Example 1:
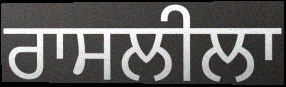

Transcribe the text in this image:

ਰਾਸਲੀਲਾ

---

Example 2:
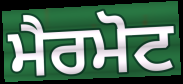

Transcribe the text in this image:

ਮੈਰਮੋਟ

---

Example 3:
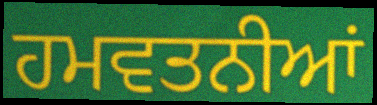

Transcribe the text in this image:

ਹਮਵਤਨੀਆਂ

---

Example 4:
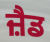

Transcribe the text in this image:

ਜ਼ੈਡ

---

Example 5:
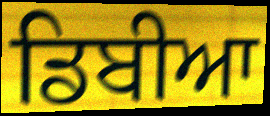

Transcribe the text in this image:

ਡਿਬੀਆ